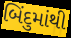
બિંદુમાંથી